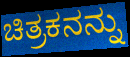
ಚಿತ್ರಕನನ್ನು